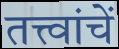
तत्त्वांचें